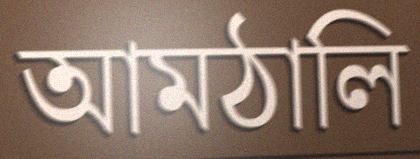
আমঠালি